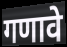
गणावे